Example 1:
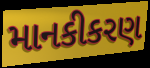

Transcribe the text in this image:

માનકીકરણ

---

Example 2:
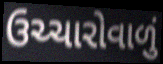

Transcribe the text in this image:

ઉચ્ચારોવાળું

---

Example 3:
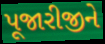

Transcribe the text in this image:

પૂજારીજીને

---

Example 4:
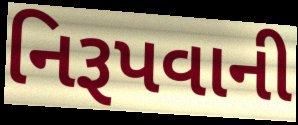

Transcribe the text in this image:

નિરૂપવાની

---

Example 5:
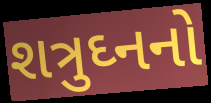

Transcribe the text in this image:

શત્રુઘ્નનો